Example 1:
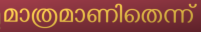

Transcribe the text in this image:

മാത്രമാണിതെന്ന്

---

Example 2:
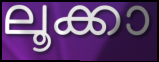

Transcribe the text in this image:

ലൂക്കാ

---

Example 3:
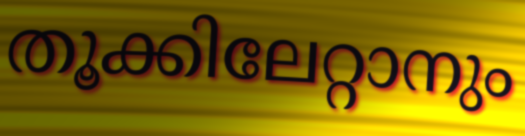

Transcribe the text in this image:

തൂക്കിലേറ്റാനും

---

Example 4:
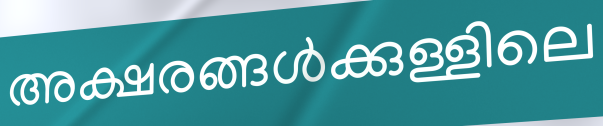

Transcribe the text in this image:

അക്ഷരങ്ങൾക്കുള്ളിലെ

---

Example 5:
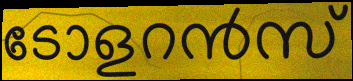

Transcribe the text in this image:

ടോളറൻസ്